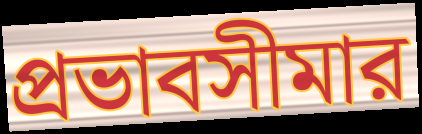
প্রভাবসীমার